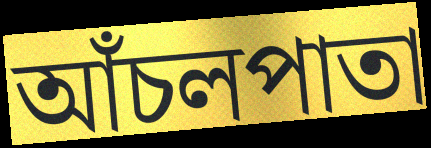
আঁচলপাতা